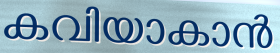
കവിയാകാൻ